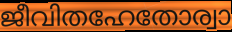
ജീവിതഹേതോര്വാ